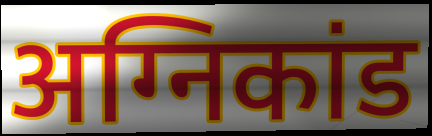
अग्निकांड